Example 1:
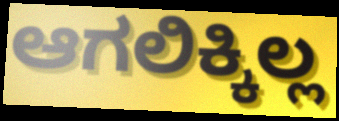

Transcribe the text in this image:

ಆಗಲಿಕ್ಕಿಲ್ಲ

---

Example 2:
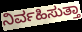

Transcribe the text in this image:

ನಿರ್ವಹಿಸುತ್ತಾ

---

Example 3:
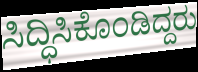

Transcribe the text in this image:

ಸಿದ್ಧಿಸಿಕೊಂಡಿದ್ದರು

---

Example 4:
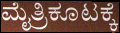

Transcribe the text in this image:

ಮೈತ್ರಿಕೂಟಕ್ಕೆ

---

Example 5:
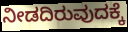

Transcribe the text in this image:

ನೀಡದಿರುವುದಕ್ಕೆ